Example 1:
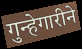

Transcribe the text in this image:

गुन्हेगारीने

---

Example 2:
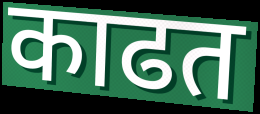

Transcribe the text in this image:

काढत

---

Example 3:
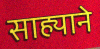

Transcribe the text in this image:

साह्याने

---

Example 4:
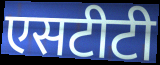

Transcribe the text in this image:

एसटीटी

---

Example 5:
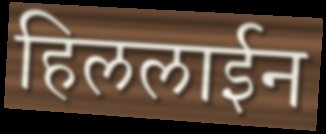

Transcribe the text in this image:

हिललाईन